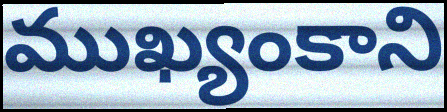
ముఖ్యంకాని